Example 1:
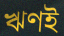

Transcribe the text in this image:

ঋণই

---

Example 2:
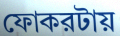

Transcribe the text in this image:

ফোকরটায়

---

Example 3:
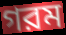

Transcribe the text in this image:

গরম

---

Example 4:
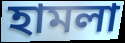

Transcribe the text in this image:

হামলা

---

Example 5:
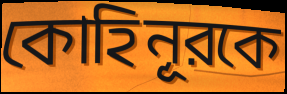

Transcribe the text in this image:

কোহিনূরকে